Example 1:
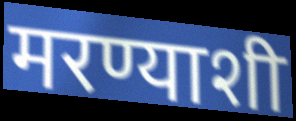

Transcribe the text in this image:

मरण्याशी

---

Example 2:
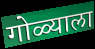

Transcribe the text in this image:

गोळ्याला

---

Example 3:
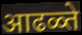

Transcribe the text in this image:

आढळ्ते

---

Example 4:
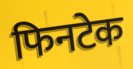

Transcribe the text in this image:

फिनटेक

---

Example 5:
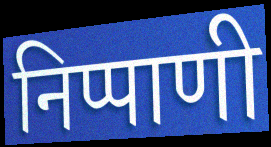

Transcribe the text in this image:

निप्पाणी